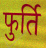
फुर्ति